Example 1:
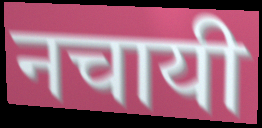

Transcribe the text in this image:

नचायी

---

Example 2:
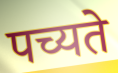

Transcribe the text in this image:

पच्यते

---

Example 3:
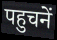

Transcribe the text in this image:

पहुचनें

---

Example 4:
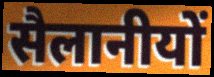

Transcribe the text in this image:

सैलानीयों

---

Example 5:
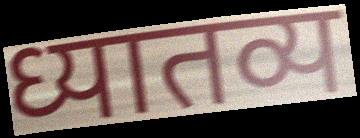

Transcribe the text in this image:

ध्यातव्य